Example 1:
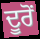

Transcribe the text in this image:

ਦੂਰੋਂ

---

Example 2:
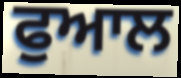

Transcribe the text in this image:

ਫੁਆਲ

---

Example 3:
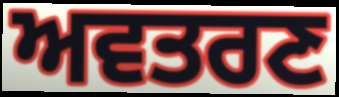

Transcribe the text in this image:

ਅਵਤਰਣ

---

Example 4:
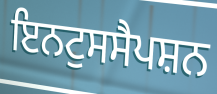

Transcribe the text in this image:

ਇਨਟੁਸਸੈਪਸ਼ਨ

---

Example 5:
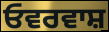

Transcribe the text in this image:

ਓਵਰਵਾਸ਼